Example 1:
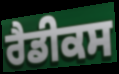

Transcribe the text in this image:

ਰੈਡੀਕਸ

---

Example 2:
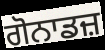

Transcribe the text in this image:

ਗੋਨਾਡਜ਼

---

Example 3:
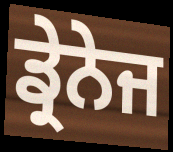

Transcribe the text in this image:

ਡ੍ਰੇਨੇਜ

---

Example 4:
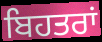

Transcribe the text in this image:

ਬਿਹਤਰਾਂ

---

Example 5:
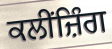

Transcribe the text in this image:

ਕਲੀਂਜ਼ਿੰਗ